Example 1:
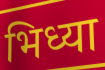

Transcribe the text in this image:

भिध्या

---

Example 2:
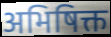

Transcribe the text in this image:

अभिषिक्त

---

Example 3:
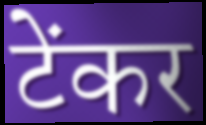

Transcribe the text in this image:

टेंकर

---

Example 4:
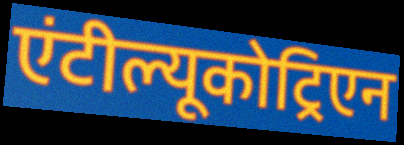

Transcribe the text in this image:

एंटील्यूकोट्रिएन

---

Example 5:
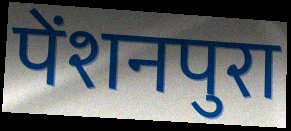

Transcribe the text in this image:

पेंशनपुरा